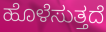
ಹೊಳೆಸುತ್ತದೆ